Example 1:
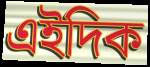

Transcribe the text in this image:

এইদিক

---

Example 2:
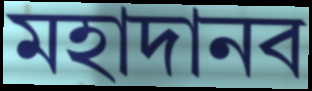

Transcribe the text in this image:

মহাদানব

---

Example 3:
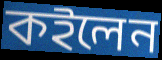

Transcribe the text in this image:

কইলেন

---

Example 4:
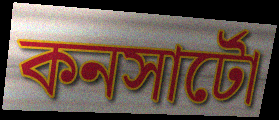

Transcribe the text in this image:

কনসার্টো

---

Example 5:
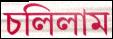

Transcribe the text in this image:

চলিলাম